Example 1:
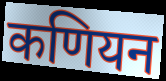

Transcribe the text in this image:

कणियन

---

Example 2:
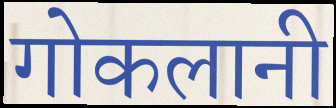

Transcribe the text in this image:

गोकलानी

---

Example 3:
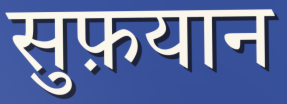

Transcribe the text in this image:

सुफ़यान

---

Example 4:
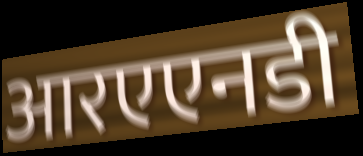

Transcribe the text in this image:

आरएएनडी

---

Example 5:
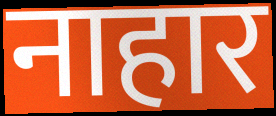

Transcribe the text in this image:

नाहार